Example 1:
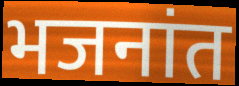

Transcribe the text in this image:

भजनांत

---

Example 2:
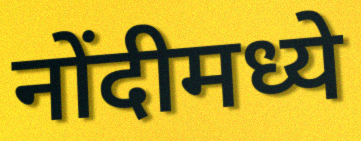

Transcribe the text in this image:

नोंदीमध्ये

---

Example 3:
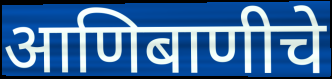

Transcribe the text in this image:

आणिबाणीचे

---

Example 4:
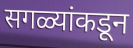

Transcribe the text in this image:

सगळ्यांकडून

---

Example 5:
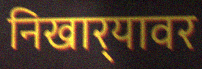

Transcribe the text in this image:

निखार्‍यावर